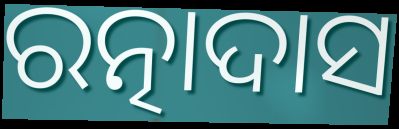
ରତ୍ନାଦାସ